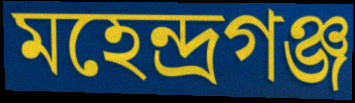
মহেন্দ্রগঞ্জ